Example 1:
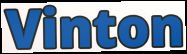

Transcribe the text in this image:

Vinton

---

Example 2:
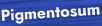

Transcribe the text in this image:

Pigmentosum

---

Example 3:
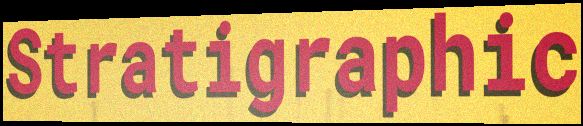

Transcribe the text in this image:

Stratigraphic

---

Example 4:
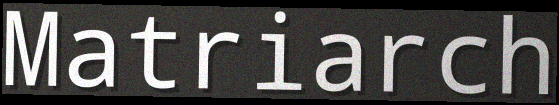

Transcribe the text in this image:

Matriarch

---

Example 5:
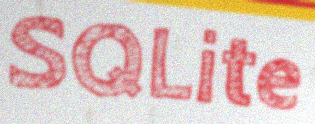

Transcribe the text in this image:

SQLite